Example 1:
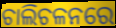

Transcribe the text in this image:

ଚାଲିଚଳନରେ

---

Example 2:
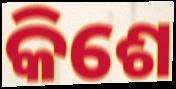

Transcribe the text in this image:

କିଶେ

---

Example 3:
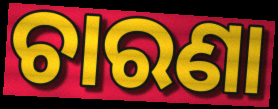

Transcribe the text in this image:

ଚାରଣା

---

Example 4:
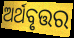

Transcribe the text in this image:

ଅର୍ଥବୃତ୍ତର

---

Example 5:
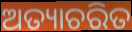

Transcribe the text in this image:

ଅତ୍ୟାଚରିତ